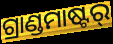
ଗ୍ରାଣ୍ଡମାଷ୍ଟର୍